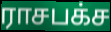
ராசபக்ச